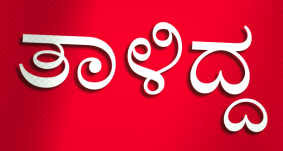
ತಾಳಿದ್ದ